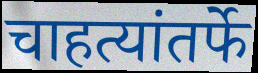
चाहत्यांतर्फे